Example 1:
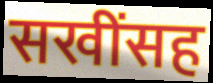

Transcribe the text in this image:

सखींसह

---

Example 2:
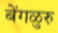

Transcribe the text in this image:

बेंगळुरु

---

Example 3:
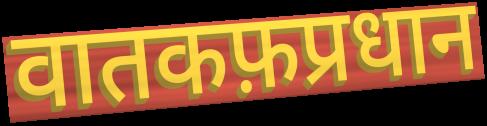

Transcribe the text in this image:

वातकफ़प्रधान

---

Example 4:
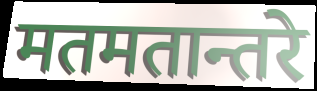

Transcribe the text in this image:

मतमतान्तरे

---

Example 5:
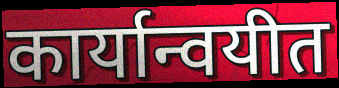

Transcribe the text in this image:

कार्यान्वयीत